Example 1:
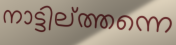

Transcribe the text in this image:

നാട്ടില്ത്തന്നെ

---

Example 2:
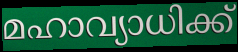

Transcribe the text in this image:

മഹാവ്യാധിക്ക്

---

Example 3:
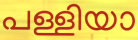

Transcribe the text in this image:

പള്ളിയാ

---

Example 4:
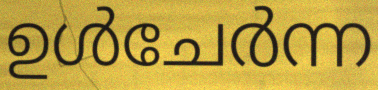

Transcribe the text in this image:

ഉൾചേർന്ന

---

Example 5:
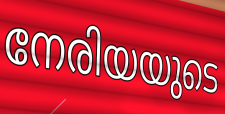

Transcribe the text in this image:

നേരിയയുടെ